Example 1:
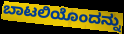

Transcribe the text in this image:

ಬಾಟಲಿಯೊಂದನ್ನು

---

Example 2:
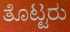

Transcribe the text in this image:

ತೊಟ್ಟರು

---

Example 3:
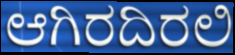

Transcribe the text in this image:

ಆಗಿರದಿರಲಿ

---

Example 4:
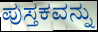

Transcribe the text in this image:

ಪುಸ್ತಕವನ್ನು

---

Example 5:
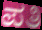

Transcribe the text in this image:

ಪತಿ